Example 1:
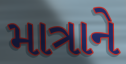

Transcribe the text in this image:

માત્રાને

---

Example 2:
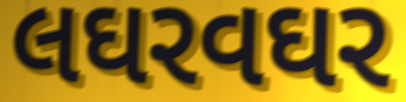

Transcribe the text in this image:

લઘરવઘર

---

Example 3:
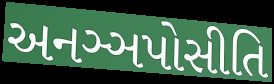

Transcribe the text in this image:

અનઞ્ઞપોસીતિ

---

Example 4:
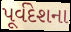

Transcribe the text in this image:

પૂર્વદેશના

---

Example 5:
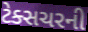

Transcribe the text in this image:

ટેક્સચરની